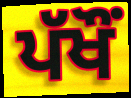
ਪੱਖੌਂ